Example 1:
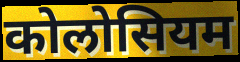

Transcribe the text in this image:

कोलोसियम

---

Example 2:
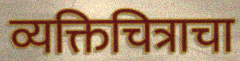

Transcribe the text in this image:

व्यक्तिचित्राचा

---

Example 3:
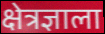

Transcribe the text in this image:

क्षेत्रज्ञाला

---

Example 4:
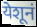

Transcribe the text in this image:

येशूनं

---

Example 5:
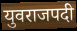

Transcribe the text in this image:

युवराजपदी